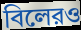
বিলেরও